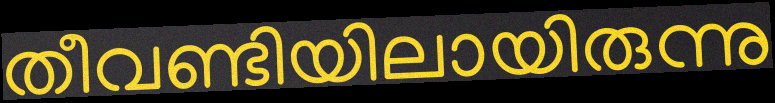
തീവണ്ടിയിലായിരുന്നു